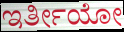
ಇರ್ತೀಯೋ